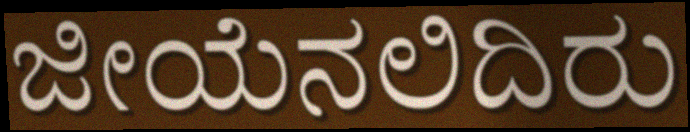
ಜೀಯೆನಲಿದಿರು